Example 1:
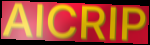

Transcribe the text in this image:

AICRIP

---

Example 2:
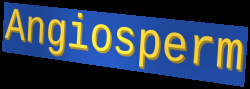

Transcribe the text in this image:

Angiosperm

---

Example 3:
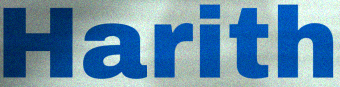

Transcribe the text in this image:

Harith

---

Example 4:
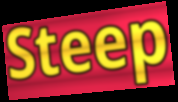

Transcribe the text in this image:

Steep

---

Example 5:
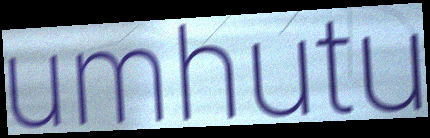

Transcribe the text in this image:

umhutu